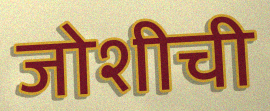
जोशीची